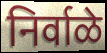
निर्वाळे